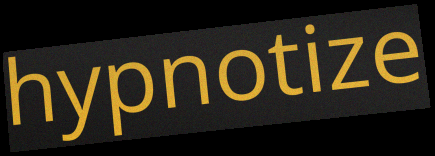
hypnotize